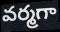
వర్మగా